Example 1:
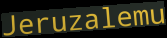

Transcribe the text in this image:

Jeruzalemu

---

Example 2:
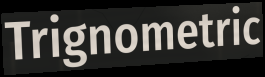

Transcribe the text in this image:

Trignometric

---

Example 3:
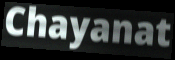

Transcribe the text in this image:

Chayanat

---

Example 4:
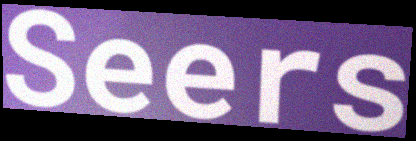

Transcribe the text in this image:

Seers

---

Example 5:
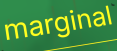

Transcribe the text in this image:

marginal